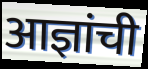
आज्ञांची